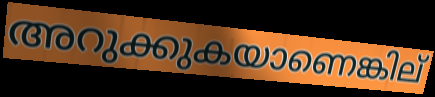
അറുക്കുകയാണെങ്കില്